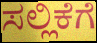
ಸಲ್ಲಿಕೆಗೆ